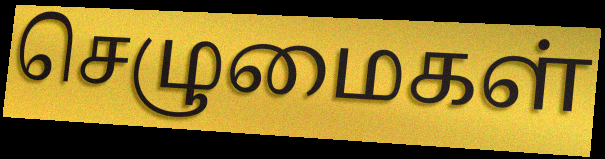
செழுமைகள்